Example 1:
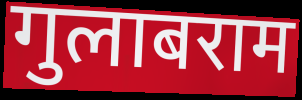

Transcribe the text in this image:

गुलाबराम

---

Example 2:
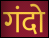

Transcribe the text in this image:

गंदो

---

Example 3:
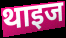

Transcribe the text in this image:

थाइज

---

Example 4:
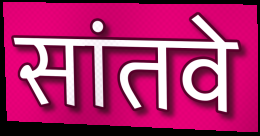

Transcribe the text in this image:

सांतवे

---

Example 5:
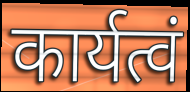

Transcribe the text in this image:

कार्यत्वं